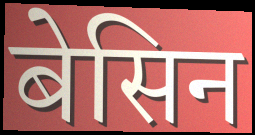
बेसिन